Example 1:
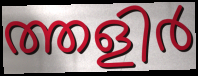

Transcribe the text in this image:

ത്തളിർ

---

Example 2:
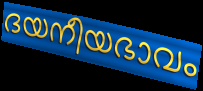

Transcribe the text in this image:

ദയനീയഭാവം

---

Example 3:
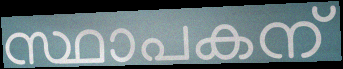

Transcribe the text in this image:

സ്ഥാപകന്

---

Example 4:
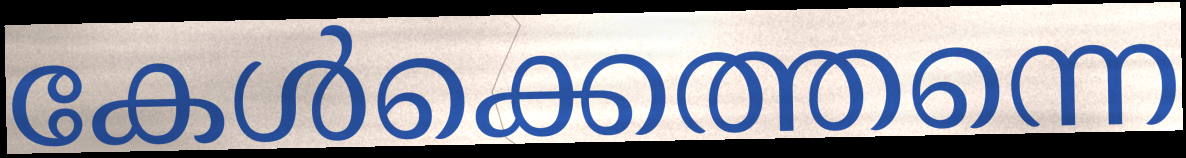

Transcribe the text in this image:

കേൾക്കെത്തന്നെ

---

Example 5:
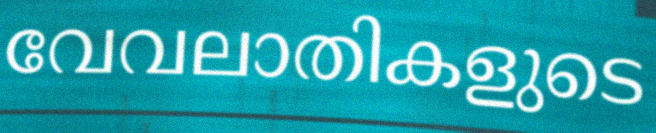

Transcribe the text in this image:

വേവലാതികളുടെ